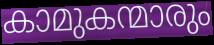
കാമുകന്മാരും